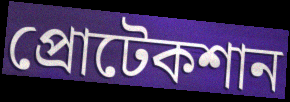
প্রোটেকশান